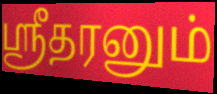
ஸ்ரீதரனும்